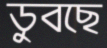
ডুবছে